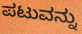
ಪಟುವನ್ನು